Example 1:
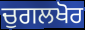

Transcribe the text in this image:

ਚੁਗਲਖੋਰ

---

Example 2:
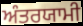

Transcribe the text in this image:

ਅੰਤਰਯਾਮੀ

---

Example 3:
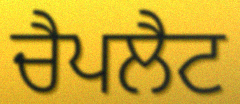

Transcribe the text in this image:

ਚੈਪਲੈਟ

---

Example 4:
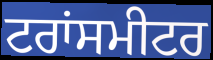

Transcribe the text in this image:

ਟਰਾਂਸਮੀਟਰ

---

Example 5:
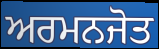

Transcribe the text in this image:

ਅਰਮਨਜੋਤ